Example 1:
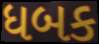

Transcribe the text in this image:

ધબક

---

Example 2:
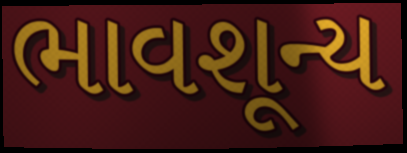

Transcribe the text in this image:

ભાવશૂન્ય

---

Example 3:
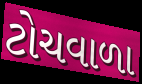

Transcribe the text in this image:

ટોચવાળા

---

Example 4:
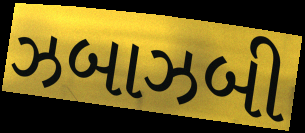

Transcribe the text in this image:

ઝબાઝબી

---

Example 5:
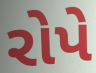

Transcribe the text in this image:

રોપે